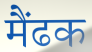
मैंढक